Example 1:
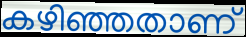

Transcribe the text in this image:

കഴിഞ്ഞതാണ്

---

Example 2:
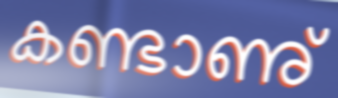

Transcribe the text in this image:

കണ്ടാണു്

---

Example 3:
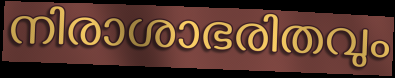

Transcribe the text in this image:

നിരാശാഭരിതവും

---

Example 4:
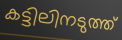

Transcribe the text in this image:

കട്ടിലിനടുത്ത്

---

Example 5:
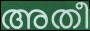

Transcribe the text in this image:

അതീ